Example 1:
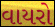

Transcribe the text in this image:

વાયરો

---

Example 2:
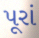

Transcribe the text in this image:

પૂરાં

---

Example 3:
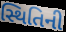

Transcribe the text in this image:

સ્થિતિની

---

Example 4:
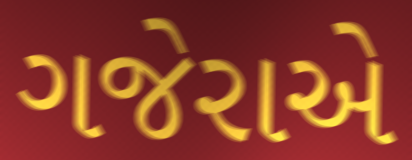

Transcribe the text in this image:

ગજેરાએ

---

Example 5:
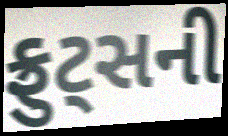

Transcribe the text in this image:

ફ્રુટ્સની